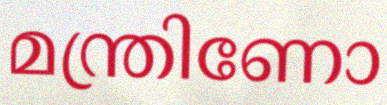
മന്ത്രിണോ